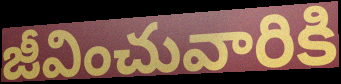
జీవించువారికి